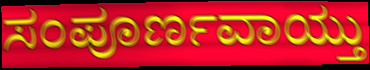
ಸಂಪೂರ್ಣವಾಯ್ತು